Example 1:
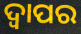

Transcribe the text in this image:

ଦ୍ୱାପର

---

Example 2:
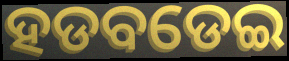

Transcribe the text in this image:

ହଡବଡେଇ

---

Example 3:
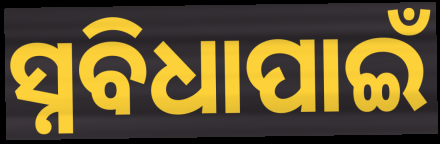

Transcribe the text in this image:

ସ୍ନବିଧାପାଇଁ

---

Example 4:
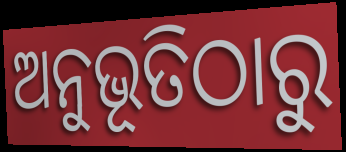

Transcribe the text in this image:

ଅନୁଭୂତିଠାରୁ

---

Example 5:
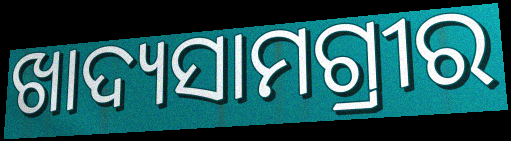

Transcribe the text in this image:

ଖାଦ୍ୟସାମଗ୍ରୀର